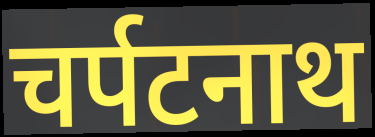
चर्पटनाथ